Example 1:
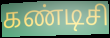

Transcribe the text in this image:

கண்டிசி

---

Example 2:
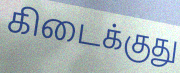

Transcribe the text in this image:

கிடைக்குது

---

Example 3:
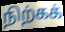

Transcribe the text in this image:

நிற்கக்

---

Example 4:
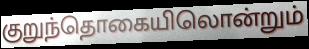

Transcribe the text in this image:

குறுந்தொகையிலொன்றும்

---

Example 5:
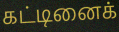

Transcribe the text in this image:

கட்டினைக்